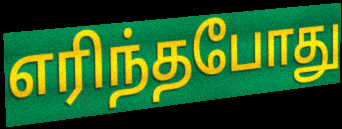
எரிந்தபோது